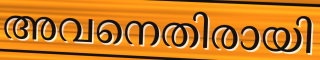
അവനെതിരായി